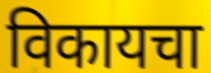
विकायचा